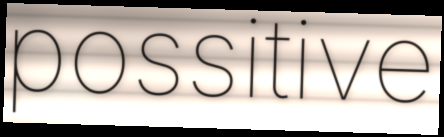
possitive